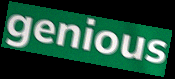
genious